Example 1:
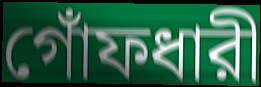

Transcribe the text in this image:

গোঁফধারী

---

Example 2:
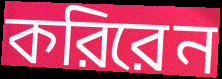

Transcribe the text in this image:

করিরেন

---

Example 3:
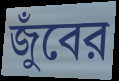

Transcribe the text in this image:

জুঁবের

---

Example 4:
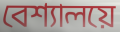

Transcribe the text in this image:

বেশ্যালয়ে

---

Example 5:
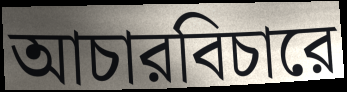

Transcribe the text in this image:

আচারবিচারে